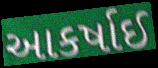
આકર્ષાઈ